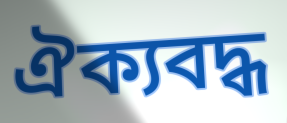
ঐক্যবদ্ধ